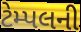
ટેમ્પલની